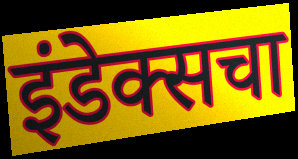
इंडेक्सचा